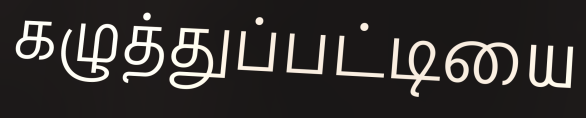
கழுத்துப்பட்டியை